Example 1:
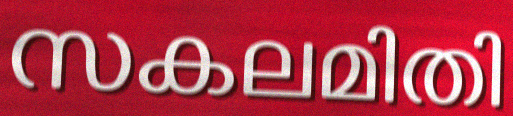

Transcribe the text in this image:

സകലമിതി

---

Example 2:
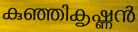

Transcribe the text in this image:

കുഞ്ഞികൃഷ്ണൻ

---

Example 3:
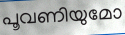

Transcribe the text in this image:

പൂവണിയുമോ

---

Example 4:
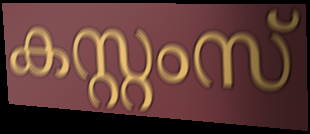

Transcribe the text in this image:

കസ്റ്റംസ്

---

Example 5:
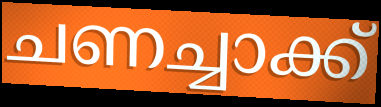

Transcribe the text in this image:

ചണച്ചാക്ക്